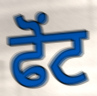
ਫੋਂਟ